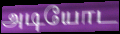
அடியோட